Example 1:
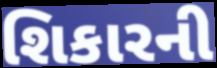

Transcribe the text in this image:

શિકારની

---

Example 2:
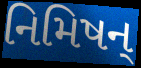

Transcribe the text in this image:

નિમિષન્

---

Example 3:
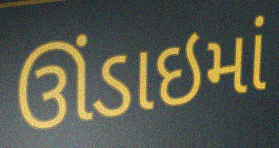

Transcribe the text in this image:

ઊંડાઇમાં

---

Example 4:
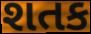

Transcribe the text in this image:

શતક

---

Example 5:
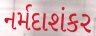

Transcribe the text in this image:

નર્મદાશંકર